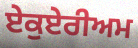
ਏਕੁਏਰੀਅਮ